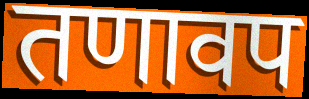
तणावप